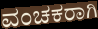
ವಂಚಕರಾಗಿ